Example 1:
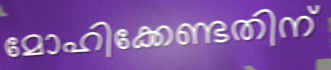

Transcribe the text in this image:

മോഹിക്കേണ്ടതിന്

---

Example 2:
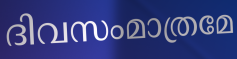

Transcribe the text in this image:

ദിവസംമാത്രമേ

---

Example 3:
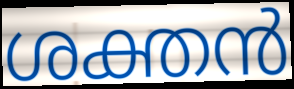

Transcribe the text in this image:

ശക്തൻ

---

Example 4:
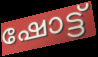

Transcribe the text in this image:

ഷോട്ട്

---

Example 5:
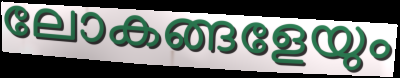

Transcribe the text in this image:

ലോകങ്ങളേയും